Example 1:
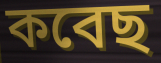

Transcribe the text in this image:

কবেছ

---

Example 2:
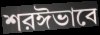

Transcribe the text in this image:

শরঈভাবে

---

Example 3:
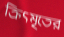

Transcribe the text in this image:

ক্রিৎমৃতের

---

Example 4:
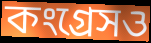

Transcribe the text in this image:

কংগ্রেসও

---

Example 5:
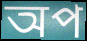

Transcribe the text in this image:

অপ